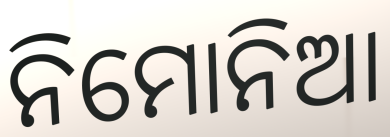
ନିମୋନିଆ